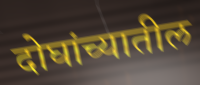
दोघांच्यातील